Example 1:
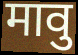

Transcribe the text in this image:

मावु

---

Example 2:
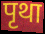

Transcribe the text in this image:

पृथा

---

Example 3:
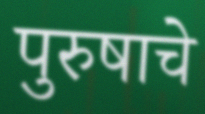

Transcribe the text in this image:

पुरुषाचे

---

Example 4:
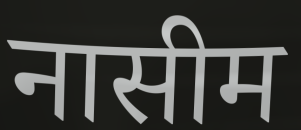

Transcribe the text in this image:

नासीम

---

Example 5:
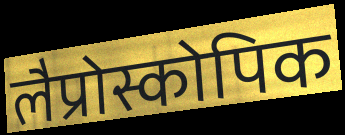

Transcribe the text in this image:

लैप्रोस्कोपिक